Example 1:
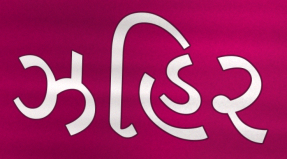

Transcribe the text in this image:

ઝહિર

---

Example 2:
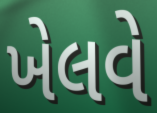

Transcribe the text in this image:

ખેલવે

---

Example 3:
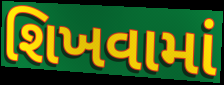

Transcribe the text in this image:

શિખવામાં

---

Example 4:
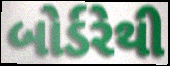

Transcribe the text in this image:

બોર્ડરેથી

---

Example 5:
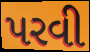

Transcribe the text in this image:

પરવી